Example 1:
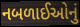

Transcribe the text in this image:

નબળાઈઓનું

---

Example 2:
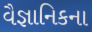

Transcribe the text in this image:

વૈજ્ઞાનિકના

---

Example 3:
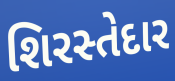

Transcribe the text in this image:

શિરસ્તેદાર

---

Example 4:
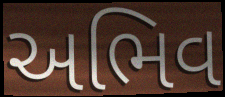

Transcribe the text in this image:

અભિવ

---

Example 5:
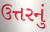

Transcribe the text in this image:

ઉત્તરનું